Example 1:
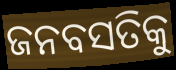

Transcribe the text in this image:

ଜନବସତିକୁ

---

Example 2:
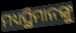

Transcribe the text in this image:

ମଧ୍ୟସ୍ଥିମାନଙ୍କୁ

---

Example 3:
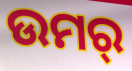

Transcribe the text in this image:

ଉମର୍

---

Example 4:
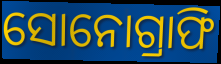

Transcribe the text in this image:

ସୋନୋଗ୍ରାଫି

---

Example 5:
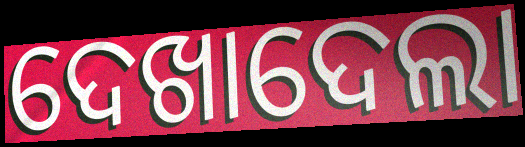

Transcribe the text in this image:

ଦେଖାଦେଲା